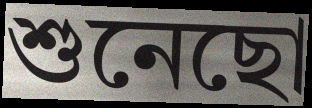
শুনেছো